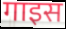
गाइस